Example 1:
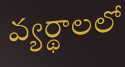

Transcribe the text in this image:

వ్యర్థాలలో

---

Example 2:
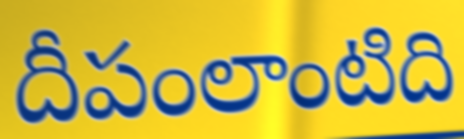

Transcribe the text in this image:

దీపంలాంటిది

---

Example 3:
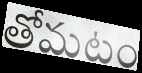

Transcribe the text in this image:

తోమటం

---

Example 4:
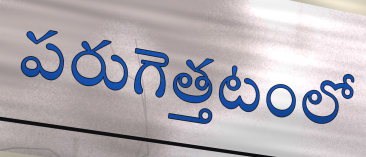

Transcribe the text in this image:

పరుగెత్తటంలో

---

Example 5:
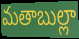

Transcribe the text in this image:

మతాబుల్లా